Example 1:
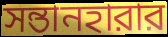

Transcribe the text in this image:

সন্তানহারার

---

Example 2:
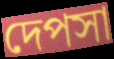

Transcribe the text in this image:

দেপসা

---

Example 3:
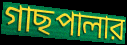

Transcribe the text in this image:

গাছপালার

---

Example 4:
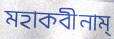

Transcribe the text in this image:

মহাকবীনাম্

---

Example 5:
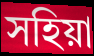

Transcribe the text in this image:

সহিয়া